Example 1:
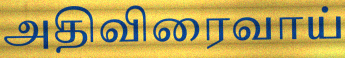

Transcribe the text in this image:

அதிவிரைவாய்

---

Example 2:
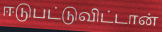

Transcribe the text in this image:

ஈடுபட்டுவிட்டான்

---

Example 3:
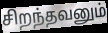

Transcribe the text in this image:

சிறந்தவனும்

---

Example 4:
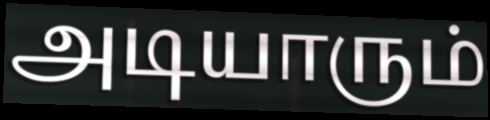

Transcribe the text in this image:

அடியாரும்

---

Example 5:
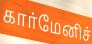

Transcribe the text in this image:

கார்மேனிச்